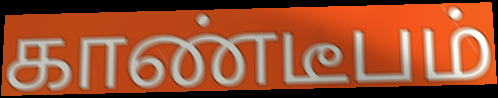
காண்டீபம்